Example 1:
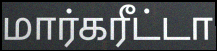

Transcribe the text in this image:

மார்கரீட்டா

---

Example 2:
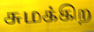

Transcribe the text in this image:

சுமக்கிற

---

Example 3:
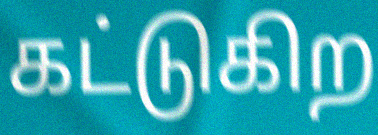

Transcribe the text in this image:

கட்டுகிற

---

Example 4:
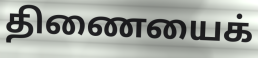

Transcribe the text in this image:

திணையைக்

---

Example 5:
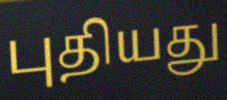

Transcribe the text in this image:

புதியது